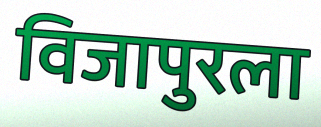
विजापुरला